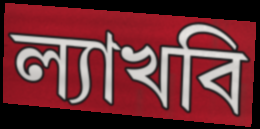
ল্যাখবি